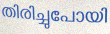
തിരിച്ചുപോയി